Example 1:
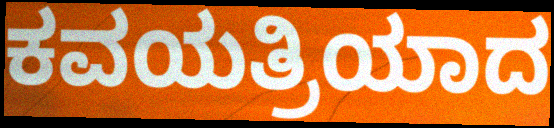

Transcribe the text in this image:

ಕವಯತ್ರಿಯಾದ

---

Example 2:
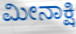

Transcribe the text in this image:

ಮೀನಾಕ್ಷಿ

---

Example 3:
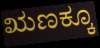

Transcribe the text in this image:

ಋಣಕ್ಕೂ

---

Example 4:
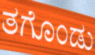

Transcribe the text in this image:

ತಗೊಂಡು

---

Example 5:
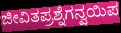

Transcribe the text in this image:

ಜೀವಿತಪ್ರಶ್ನೆಗನ್ವಯಿಪ